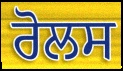
ਰੋਲਸ